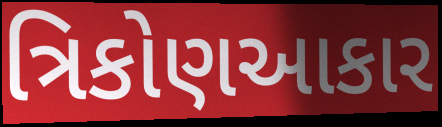
ત્રિકોણઆકાર